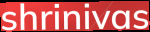
shrinivas